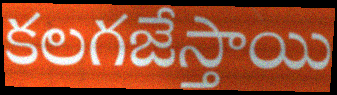
కలగజేస్తాయి